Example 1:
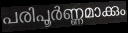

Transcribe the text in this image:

പരിപൂർണ്ണമാക്കും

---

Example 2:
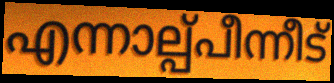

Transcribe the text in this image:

എന്നാല്പ്പീന്നീട്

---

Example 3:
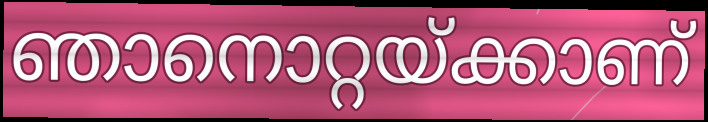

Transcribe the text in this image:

ഞാനൊറ്റയ്ക്കാണ്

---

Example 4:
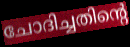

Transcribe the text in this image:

ചോദിച്ചതിന്റെ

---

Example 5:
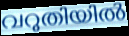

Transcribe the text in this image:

വറുതിയിൽ